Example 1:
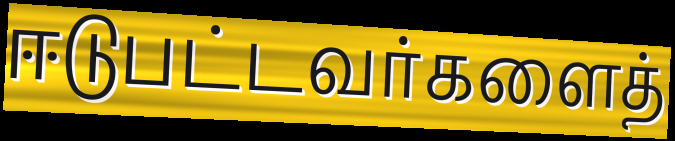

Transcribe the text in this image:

ஈடுபட்டவர்களைத்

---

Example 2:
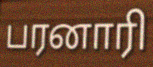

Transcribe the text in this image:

பரனாரி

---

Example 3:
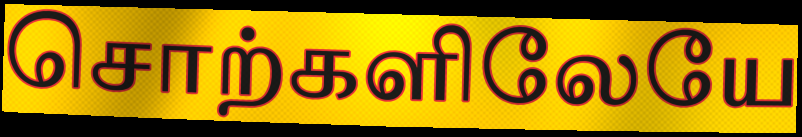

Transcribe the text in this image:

சொற்களிலேயே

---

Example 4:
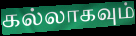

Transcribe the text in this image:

கல்லாகவும்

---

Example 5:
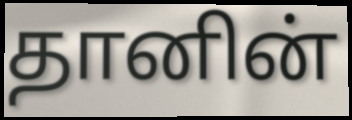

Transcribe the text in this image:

தானின்